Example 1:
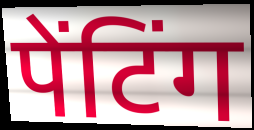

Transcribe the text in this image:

पेंटिंग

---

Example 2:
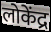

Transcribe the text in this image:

लोकेंद्र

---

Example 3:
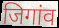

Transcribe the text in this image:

जिगांव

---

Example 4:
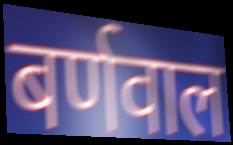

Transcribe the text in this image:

बर्णवाल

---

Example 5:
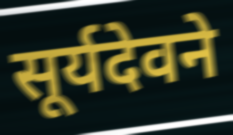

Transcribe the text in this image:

सूर्यदेवने